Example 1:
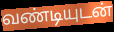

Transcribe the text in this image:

வண்டியுடன்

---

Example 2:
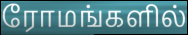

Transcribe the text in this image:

ரோமங்களில்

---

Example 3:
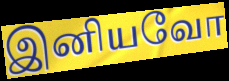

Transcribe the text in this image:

இனியவோ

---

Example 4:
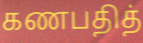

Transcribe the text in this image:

கணபதித்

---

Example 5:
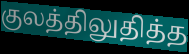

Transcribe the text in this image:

குலத்திலுதித்த